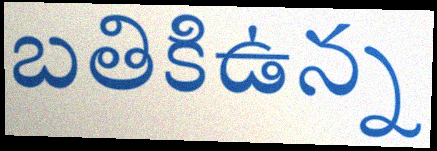
బతికిఉన్న